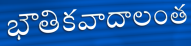
భౌతికవాదాలంత